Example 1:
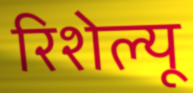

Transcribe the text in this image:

रिशेल्यू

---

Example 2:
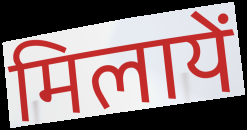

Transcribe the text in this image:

मिलायें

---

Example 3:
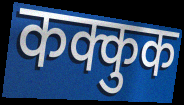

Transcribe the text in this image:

कक्कुक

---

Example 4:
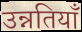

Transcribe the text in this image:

उन्नतियाँ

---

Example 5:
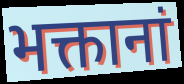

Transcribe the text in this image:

भक्तानां